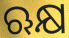
ଋକ୍ଷ